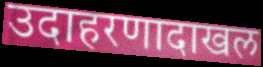
उदाहरणादाखल